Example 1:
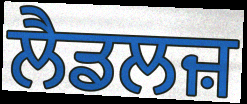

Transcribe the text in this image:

ਲੈਡਲਜ਼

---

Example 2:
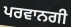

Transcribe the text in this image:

ਪਰਵਾਨਗੀ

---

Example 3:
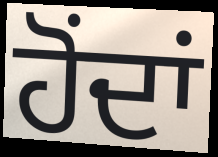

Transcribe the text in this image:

ਹੋਂਦਾਂ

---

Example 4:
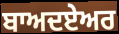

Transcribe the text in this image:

ਬਾਅਦਏਅਰ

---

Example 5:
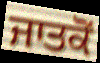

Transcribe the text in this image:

ਜਾਤਕੋਂ